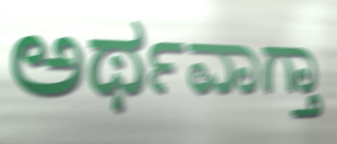
ಅರ್ಥವಾಗ್ತಾ